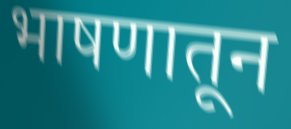
भाषणातून